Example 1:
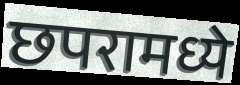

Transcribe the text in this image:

छपरामध्ये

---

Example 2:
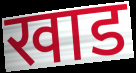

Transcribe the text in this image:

खाड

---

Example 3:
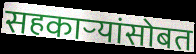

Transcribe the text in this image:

सहकाऱ्यांसोबत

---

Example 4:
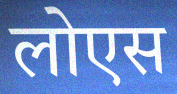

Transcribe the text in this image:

लोएस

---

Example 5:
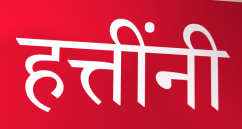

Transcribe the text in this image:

हत्तींनी